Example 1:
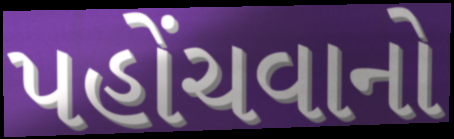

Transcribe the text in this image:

પહોંચવાનો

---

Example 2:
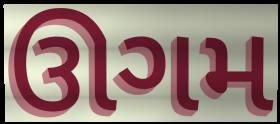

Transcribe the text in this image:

ઊગમ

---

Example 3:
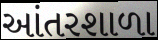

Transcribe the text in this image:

આંતરશાળા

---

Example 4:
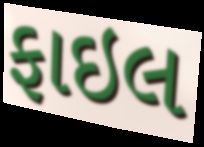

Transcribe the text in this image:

ફાઇલ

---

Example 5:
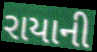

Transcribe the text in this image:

રાયાની